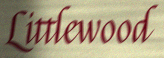
Littlewood